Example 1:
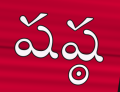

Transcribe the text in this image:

షష్ఠ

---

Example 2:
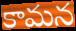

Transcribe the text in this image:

కామన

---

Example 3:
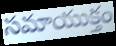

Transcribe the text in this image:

సమాయుక్తం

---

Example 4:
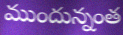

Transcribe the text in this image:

ముందున్నంత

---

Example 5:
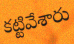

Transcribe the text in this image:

కట్టివేశారు